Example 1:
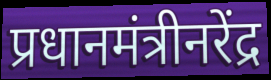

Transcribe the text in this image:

प्रधानमंत्रीनरेंद्र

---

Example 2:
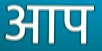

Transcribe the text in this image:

आप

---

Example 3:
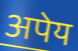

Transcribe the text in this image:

अपेय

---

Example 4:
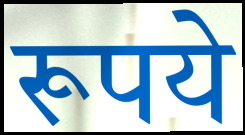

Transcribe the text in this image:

रूपये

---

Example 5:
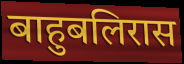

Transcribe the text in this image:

बाहुबलिरास